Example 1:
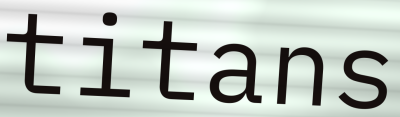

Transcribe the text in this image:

titans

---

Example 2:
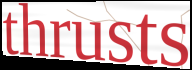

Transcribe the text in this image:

thrusts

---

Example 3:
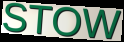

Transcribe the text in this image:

STOW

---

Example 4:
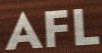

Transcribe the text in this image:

AFL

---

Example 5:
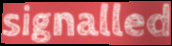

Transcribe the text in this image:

signalled